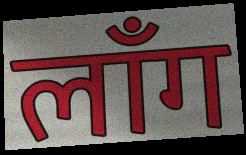
लाँग